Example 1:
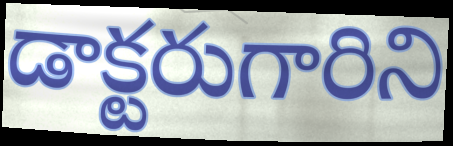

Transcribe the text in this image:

డాక్టరుగారిని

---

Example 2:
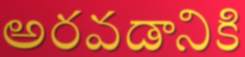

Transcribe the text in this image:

అరవడానికి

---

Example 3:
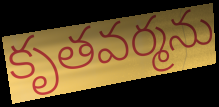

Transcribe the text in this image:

కృతవర్మను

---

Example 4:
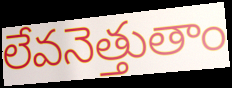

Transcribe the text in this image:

లేవనెత్తుతాం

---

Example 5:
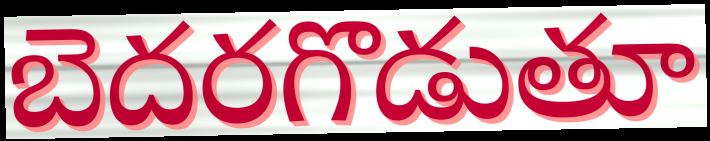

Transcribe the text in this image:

బెదరగొడుతూ